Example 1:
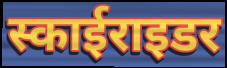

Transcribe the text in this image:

स्काईराइडर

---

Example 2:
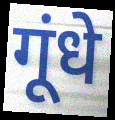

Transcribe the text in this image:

गूंधे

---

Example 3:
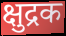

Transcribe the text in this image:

क्षुद्रक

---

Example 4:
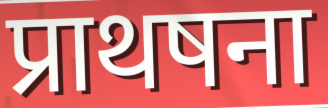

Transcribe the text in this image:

प्राथषना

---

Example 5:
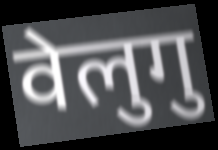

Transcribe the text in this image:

वेलुगु